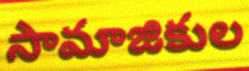
సామాజికుల